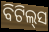
ବିଟିଲ୍‌ସ